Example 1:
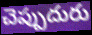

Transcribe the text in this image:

చెప్పుదురు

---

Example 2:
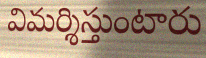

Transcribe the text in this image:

విమర్శిస్తుంటారు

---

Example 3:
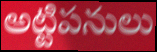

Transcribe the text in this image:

అట్టిపనులు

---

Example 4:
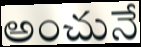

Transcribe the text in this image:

అంచునే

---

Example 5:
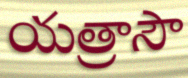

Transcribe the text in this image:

యత్రాసౌ